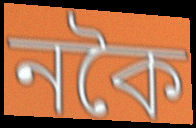
নকৈ